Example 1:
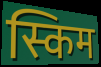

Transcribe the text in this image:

स्किम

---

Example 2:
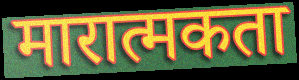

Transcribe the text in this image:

मारात्मकता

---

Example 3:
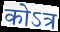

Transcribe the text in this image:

कोऽत्र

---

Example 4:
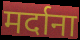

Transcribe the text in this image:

मर्दाना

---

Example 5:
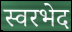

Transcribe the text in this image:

स्वरभेद